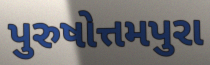
પુરુષોત્તમપુરા